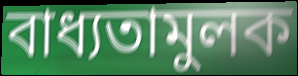
বাধ্যতামুলক